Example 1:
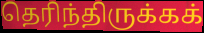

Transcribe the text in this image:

தெரிந்திருக்கக்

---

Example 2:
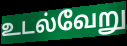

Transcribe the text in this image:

உடல்வேறு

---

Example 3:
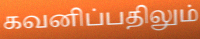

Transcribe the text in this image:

கவனிப்பதிலும்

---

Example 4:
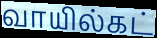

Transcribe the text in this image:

வாயில்கட்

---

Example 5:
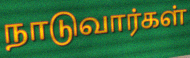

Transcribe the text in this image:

நாடுவார்கள்